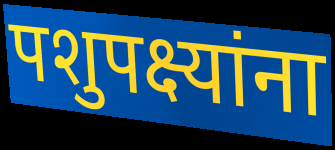
पशुपक्ष्यांना